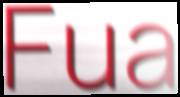
Fua